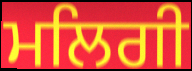
ਮਲਿਗੀ